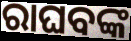
ରାଘବଙ୍କ